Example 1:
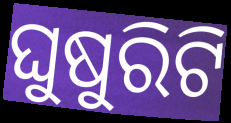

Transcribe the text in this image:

ଘୁଷୁରିଟି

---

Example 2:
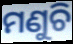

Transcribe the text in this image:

ମଣୁଚି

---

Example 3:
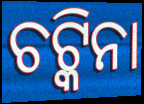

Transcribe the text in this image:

ଚଟ୍କିନା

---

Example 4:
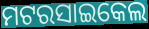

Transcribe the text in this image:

ମଟରସାଇକେଲ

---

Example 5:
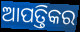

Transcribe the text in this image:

ଆପତ୍ତିକର